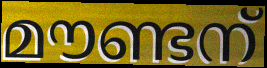
മൗണ്ടന്